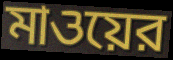
মাওয়ের